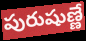
పురుషుణ్ణే